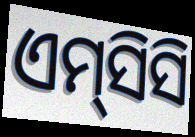
ଏମ୍‌ସିସି